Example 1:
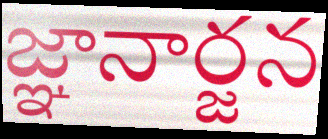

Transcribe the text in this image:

జ్ఞానార్జన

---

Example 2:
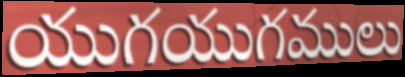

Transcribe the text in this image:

యుగయుగములు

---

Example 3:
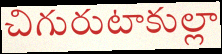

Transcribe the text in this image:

చిగురుటాకుల్లా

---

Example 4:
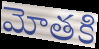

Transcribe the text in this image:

మోతకి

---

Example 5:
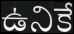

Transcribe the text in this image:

ఉనికే